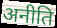
अनीति